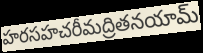
హరసహచరీమద్రితనయామ్